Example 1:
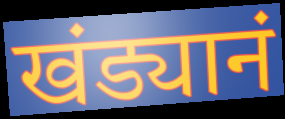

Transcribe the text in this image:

खंड्यानं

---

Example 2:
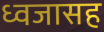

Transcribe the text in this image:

ध्वजासह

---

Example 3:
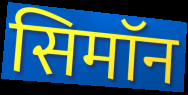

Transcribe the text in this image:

सिमॉन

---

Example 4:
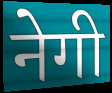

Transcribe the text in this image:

नेगी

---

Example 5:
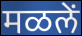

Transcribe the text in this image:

मळलें